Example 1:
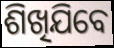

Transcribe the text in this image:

ଶିଖିଯିବେ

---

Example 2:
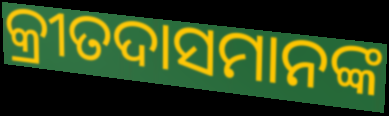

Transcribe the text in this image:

କ୍ରୀତଦାସମାନଙ୍କ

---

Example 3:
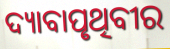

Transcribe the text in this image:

ଦ୍ୟାବାପୃଥିବୀର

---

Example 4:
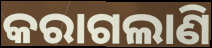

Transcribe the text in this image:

କରାଗଲାଣି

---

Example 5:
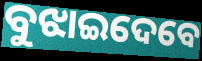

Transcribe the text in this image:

ବୁଝାଇଦେବେ